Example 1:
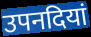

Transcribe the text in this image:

उपनदियां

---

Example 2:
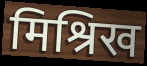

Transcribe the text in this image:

मिश्रिख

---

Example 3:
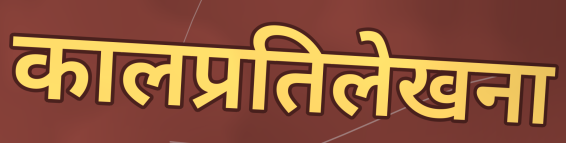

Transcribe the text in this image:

कालप्रतिलेखना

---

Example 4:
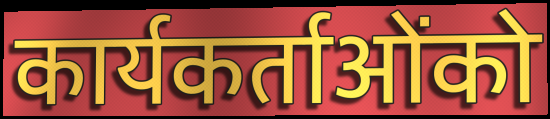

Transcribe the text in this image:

कार्यकर्ताओंको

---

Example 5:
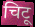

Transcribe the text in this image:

चिटू